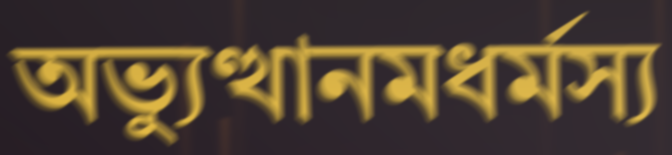
অভ্যুত্থানমধর্মস্য